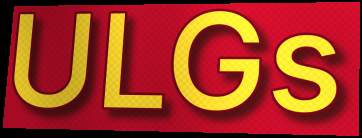
ULGs